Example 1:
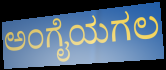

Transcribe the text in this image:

ಅಂಗೈಯಗಲ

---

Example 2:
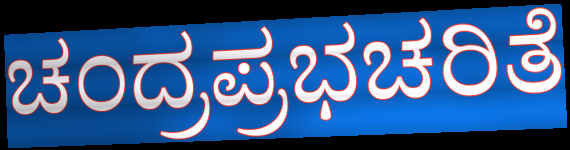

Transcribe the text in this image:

ಚಂದ್ರಪ್ರಭಚರಿತೆ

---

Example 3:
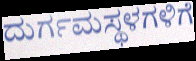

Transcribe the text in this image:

ದುರ್ಗಮಸ್ಥಳಗಳಿಗೆ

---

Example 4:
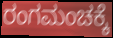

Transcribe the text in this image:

ರಂಗಮಂಚಕ್ಕೆ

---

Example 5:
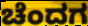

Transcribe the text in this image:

ಚೆಂದಗ